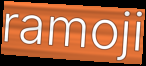
ramoji